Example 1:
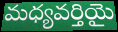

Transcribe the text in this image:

మధ్యవర్తియై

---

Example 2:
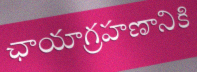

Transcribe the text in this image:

ఛాయాగ్రహణానికి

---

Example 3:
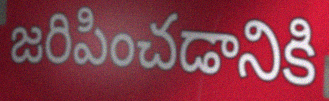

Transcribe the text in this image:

జరిపించడానికి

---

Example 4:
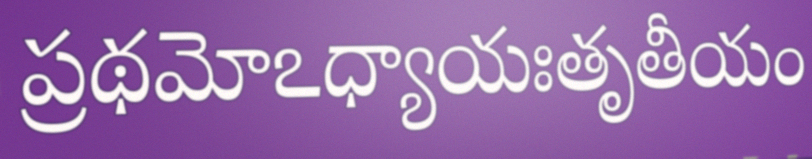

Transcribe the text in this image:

ప్రథమోఽధ్యాయఃతృతీయం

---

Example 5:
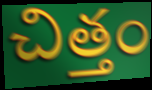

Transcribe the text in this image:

చిత్తం